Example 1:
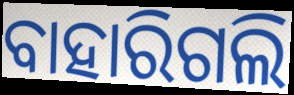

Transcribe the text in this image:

ବାହାରିଗଲି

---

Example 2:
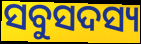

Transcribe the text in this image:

ସବୁସଦସ୍ୟ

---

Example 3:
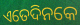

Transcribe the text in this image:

ଏତେଦିନକେ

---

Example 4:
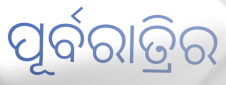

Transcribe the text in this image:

ପୂର୍ବରାତ୍ରିର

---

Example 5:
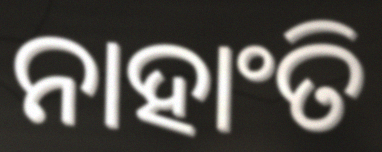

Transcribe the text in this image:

ନାହାଂତି